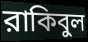
রাকিবুল